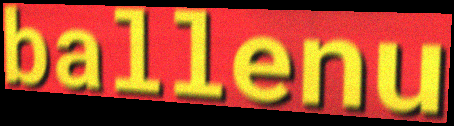
ballenu